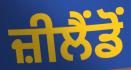
ਜ਼ੀਲੈਂਡੋਂ